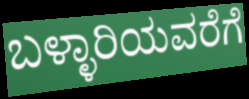
ಬಳ್ಳಾರಿಯವರೆಗೆ